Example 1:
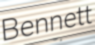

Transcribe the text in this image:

Bennett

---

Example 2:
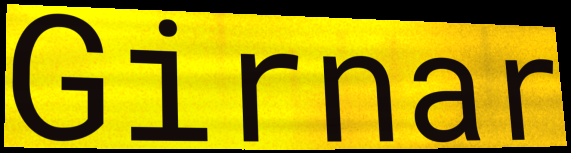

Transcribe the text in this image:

Girnar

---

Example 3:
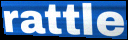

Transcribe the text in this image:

rattle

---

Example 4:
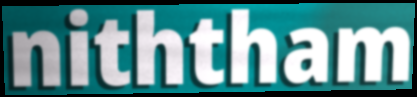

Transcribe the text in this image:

niththam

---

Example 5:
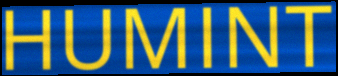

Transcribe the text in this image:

HUMINT